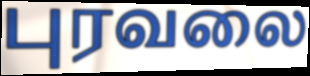
புரவலை